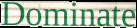
Dominate